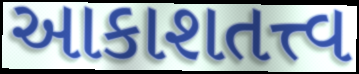
આકાશતત્ત્વ